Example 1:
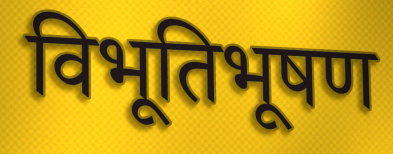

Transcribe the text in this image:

विभूतिभूषण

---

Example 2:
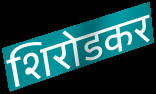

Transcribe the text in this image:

शिरोडकर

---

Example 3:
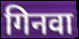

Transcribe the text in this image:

गिनवा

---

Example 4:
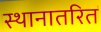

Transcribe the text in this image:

स्थानातरित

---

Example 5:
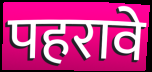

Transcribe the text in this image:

पहरावे